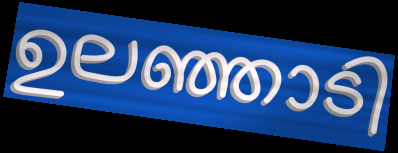
ഉലഞ്ഞാടി